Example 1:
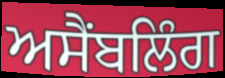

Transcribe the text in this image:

ਅਸੈਂਬਲਿੰਗ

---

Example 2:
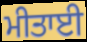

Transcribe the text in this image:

ਮੀਤਾਈ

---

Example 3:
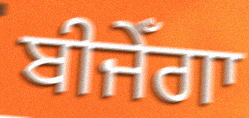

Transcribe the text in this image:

ਬੀਜੇਁਗਾ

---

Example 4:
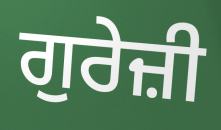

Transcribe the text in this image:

ਗੁਰੇਜ਼ੀ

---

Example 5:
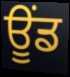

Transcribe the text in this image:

ਊਂਡ